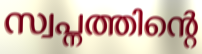
സ്വപ്നത്തിന്റെ